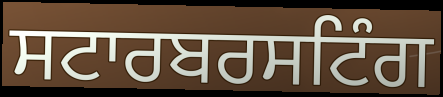
ਸਟਾਰਬਰਸਟਿੰਗ